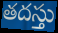
తదస్తు